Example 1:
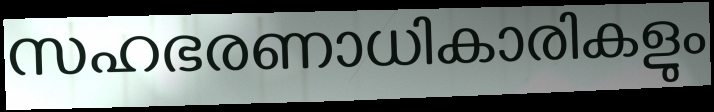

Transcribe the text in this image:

സഹഭരണാധികാരികളും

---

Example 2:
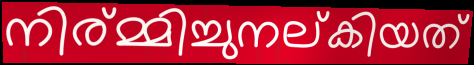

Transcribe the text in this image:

നിര്മ്മിച്ചുനല്കിയത്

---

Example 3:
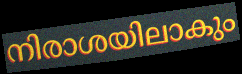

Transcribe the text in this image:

നിരാശയിലാകും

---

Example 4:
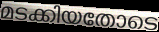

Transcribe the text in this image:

മടക്കിയതോടെ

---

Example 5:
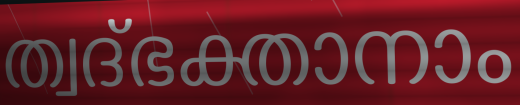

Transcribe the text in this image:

ത്വദ്ഭക്താനാം